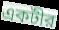
একটীর